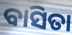
ବାସିତା